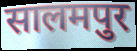
सालमपुर